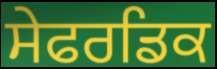
ਸੇਫਰਡਿਕ